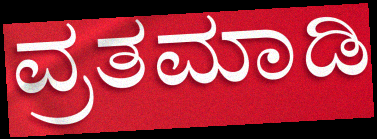
ವ್ರತಮಾಡಿ